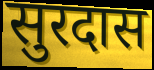
सुरदास